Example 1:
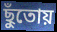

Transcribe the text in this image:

ছুঁতোয়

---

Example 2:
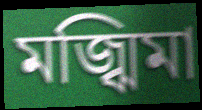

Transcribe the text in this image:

মজ্ঝিমা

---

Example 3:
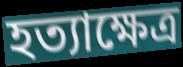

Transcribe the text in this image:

হত্যাক্ষেত্র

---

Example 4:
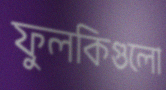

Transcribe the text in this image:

ফুলকিগুলো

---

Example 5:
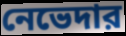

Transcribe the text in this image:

নেভেদার